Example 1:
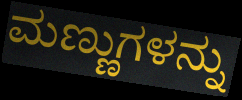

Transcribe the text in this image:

ಮಣ್ಣುಗಳನ್ನು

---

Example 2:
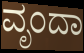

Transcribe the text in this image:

ವೃಂದಾ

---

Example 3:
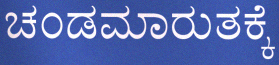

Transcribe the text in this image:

ಚಂಡಮಾರುತಕ್ಕೆ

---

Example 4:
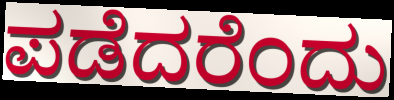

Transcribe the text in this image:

ಪಡೆದರೆಂದು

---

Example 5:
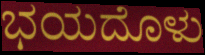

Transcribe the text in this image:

ಭಯದೊಳು